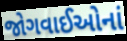
જોગવાઈઓનાં